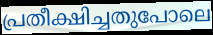
പ്രതീക്ഷിച്ചതുപോലെ